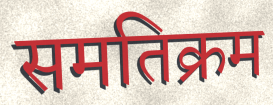
समतिक्रम